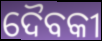
ଦୈବକୀ